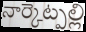
నార్కెట్పల్లి